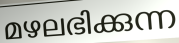
മഴലഭിക്കുന്ന